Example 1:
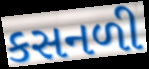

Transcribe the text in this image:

કસનળી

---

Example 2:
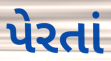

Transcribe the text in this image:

પેરતાં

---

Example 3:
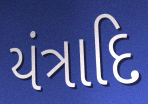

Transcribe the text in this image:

યંત્રાદિ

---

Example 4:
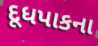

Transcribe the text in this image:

દૂધપાકના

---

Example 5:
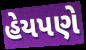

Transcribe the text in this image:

હેયપણે